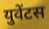
युवेंटस